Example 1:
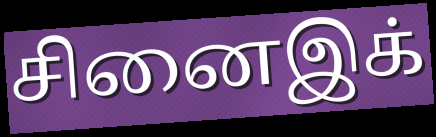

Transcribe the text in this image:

சினைஇக்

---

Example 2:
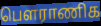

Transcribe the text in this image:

பௌராணிக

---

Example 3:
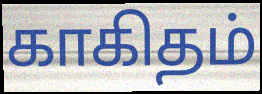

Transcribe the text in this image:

காகிதம்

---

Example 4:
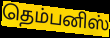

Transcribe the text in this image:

தெம்பனிஸ்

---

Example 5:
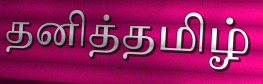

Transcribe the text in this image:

தனித்தமிழ்